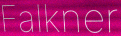
Falkner